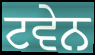
ਟਵੇਨ